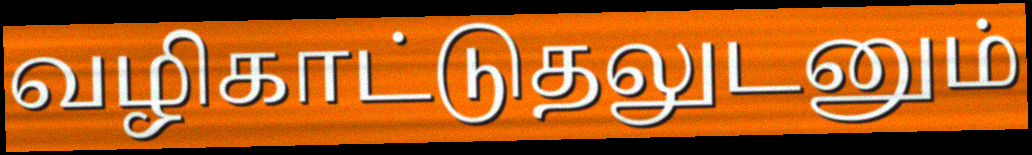
வழிகாட்டுதலுடனும்